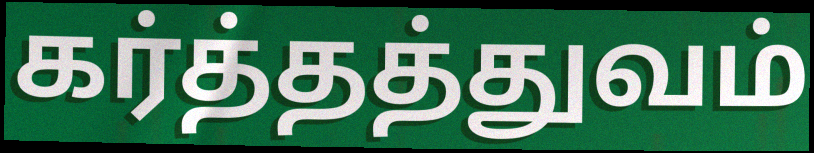
கர்த்தத்துவம்